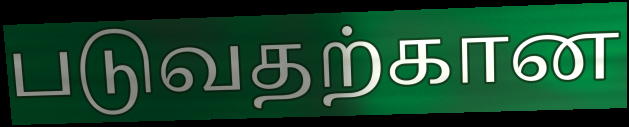
படுவதற்கான